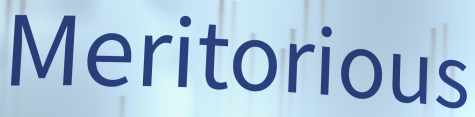
Meritorious